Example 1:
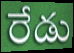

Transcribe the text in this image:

రేడు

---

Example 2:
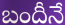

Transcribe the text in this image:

బందీనే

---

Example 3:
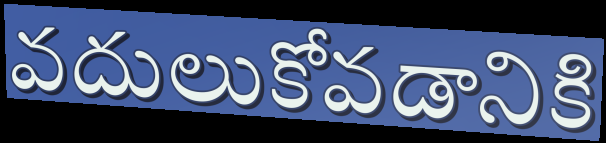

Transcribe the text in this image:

వదులుకోవడానికి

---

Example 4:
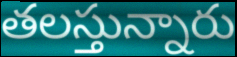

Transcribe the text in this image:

తలస్తున్నారు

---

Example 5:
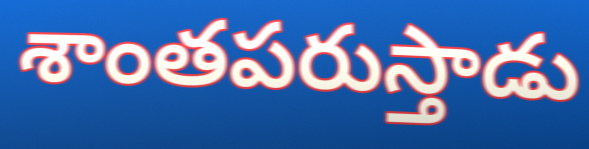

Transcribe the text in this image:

శాంతపరుస్తాడు